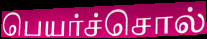
பெயர்ச்சொல்